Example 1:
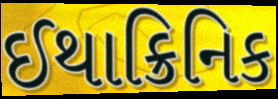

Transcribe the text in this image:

ઈથાક્રિનિક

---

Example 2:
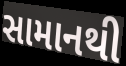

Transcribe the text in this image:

સામાનથી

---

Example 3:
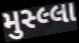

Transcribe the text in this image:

મુસ્લ્લા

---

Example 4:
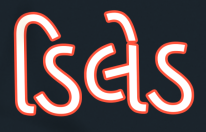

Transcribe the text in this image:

ડિલેડ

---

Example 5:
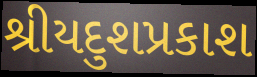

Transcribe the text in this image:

શ્રીયદુશપ્રકાશ